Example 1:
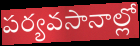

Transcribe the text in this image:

పర్యవసానాల్లో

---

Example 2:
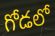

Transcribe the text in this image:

గోడలో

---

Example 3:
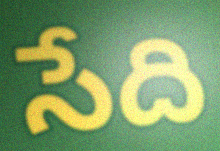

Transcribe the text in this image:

సేది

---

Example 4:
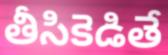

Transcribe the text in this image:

తీసికెడితే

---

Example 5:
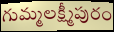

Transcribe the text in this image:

గుమ్మలక్ష్మీపురం